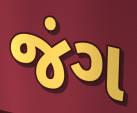
જંગ